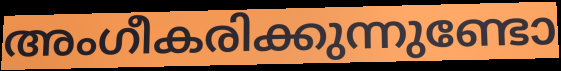
അംഗീകരിക്കുന്നുണ്ടോ